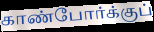
காண்போர்க்குப்